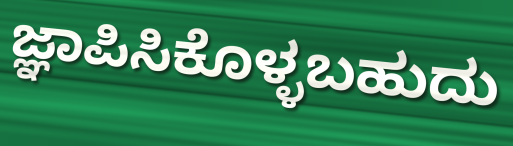
ಜ್ಞಾಪಿಸಿಕೊಳ್ಳಬಹುದು